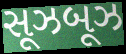
સૂઝબૂઝ